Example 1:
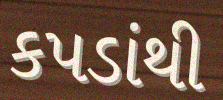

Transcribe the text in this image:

કપડાંથી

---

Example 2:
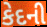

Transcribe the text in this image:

કેદની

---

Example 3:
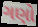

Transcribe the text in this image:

ગણો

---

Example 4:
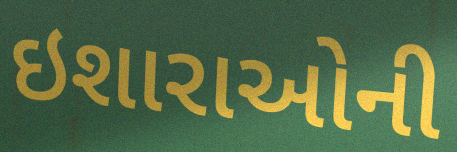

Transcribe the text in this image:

ઇશારાઓની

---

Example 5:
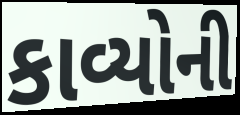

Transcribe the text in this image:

કાવ્યોની